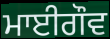
ਮਾਈਗੌਵ